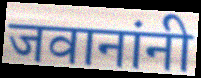
जवानांनी